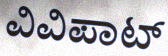
ವಿವಿಪಾಟ್